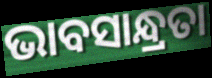
ଭାବସାନ୍ଧ୍ରତା